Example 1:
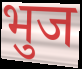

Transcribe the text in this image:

भुज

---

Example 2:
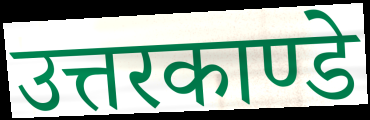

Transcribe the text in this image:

उत्तरकाण्डे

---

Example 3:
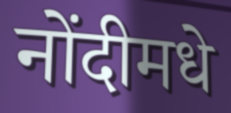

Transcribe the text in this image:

नोंदीमधे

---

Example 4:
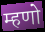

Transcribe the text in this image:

म्हणो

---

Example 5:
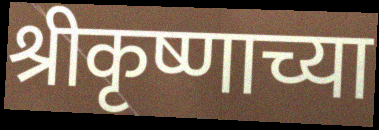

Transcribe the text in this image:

श्रीकृष्णाच्या